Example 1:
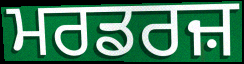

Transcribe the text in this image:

ਮਰਡਰਜ਼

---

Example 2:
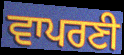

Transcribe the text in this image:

ਵਾਪਰਣੀ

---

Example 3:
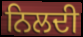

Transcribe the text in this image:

ਨਿਲਦੀ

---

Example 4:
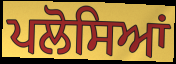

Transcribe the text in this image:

ਪਲੋਸਿਆਂ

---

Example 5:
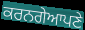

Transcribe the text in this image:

ਕਰਨਗੇਆਪਣੇ